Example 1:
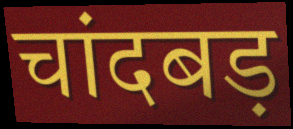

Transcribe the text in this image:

चांदबड़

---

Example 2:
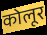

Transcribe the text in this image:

कोलूर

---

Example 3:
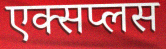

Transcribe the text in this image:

एक्सप्लस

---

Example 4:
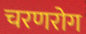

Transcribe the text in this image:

चरणरोग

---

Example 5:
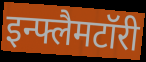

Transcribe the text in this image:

इन्फ्लैमटॉरी